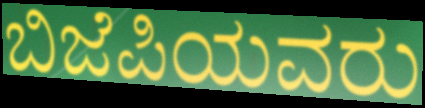
ಬಿಜೆಪಿಯವರು